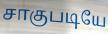
சாகுபடியே